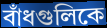
বাঁধগুলিকে